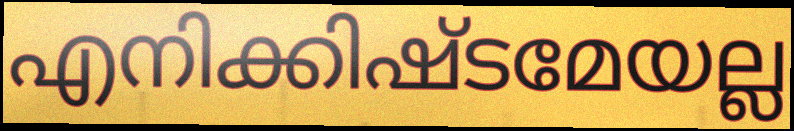
എനിക്കിഷ്ടമേയല്ല